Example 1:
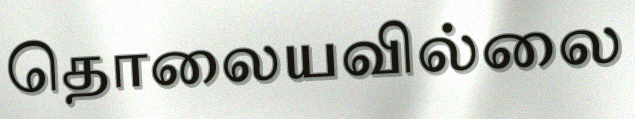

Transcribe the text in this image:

தொலையவில்லை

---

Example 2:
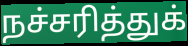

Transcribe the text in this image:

நச்சரித்துக்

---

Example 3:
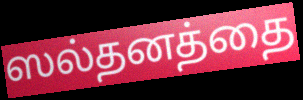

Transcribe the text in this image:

ஸல்தனத்தை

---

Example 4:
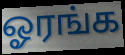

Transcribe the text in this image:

ஓரங்க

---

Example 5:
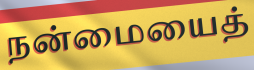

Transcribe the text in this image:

நன்மையைத்